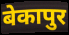
बेकापुर